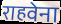
राहवेना